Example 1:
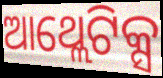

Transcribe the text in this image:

ଆଥ୍ଲେଟିକ୍ସ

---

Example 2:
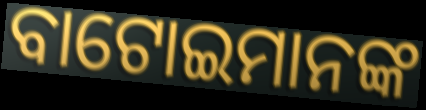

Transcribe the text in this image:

ବାଟୋଇମାନଙ୍କ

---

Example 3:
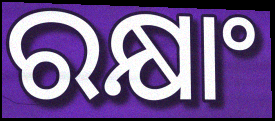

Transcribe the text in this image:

ରକ୍ଷାଂ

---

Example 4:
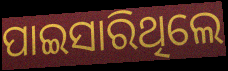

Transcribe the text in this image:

ପାଇସାରିଥିଲେ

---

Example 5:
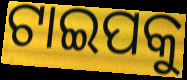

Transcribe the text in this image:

ଟାଇପକୁ